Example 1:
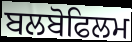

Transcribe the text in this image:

ਬਲਬੋਫਿਲਮ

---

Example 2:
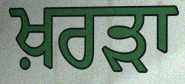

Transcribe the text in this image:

ਖ਼ਰੜਾ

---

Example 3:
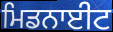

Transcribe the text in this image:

ਮਿਡਨਾਈਟ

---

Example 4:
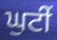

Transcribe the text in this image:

ਘੁਟੀਂ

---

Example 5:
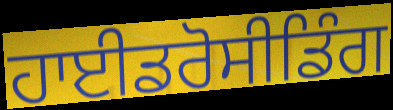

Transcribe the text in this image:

ਹਾਈਡਰੋਸੀਡਿੰਗ